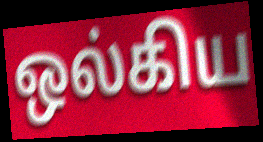
ஒல்கிய